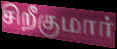
சிறீகுமார்